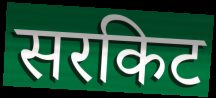
सरकिट